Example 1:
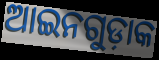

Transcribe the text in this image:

ଆଇନଗୁଡ଼ାକ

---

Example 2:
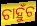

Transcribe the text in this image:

ଚାହୁଁଚ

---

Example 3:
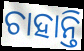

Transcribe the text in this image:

ଚାହାନ୍ତି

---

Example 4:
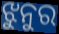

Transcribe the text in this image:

ଝୁନୁର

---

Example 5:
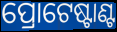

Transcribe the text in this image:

ପ୍ରୋଟେଷ୍ଟାଣ୍ଟ